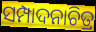
ସମ୍ପାଦନାଚିତ୍ର